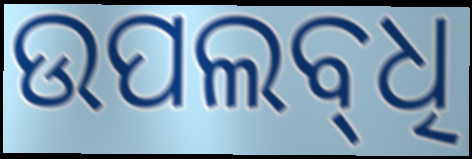
ଉପଲବ୍‍ଧି